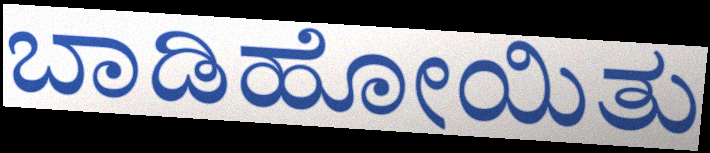
ಬಾಡಿಹೋಯಿತು